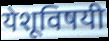
येशूविषयी